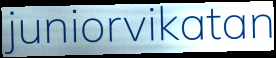
juniorvikatan